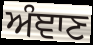
ਅੰਞਾਣ